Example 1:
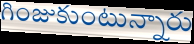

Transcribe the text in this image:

గింజుకుంటున్నారు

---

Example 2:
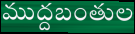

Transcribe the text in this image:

ముద్దబంతుల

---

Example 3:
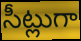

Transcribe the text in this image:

సీట్లుగా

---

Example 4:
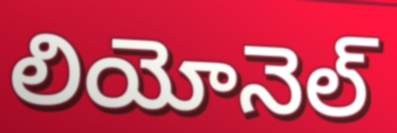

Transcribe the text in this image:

లియోనెల్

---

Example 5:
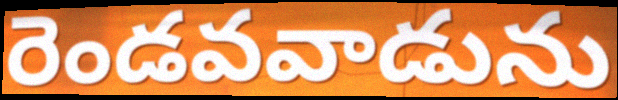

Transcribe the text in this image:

రెండవవాడును